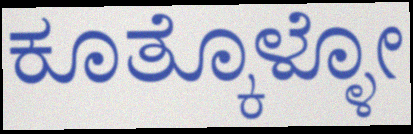
ಕೂತ್ಕೊಳ್ಳೋ